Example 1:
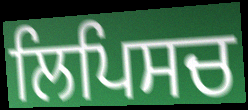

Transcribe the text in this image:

ਲਿਪਿਸਚ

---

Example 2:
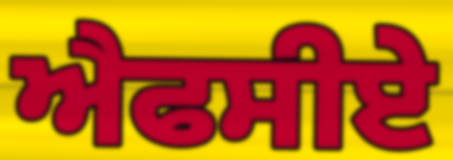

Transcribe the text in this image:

ਐਫਸੀਏ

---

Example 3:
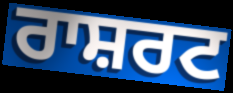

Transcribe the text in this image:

ਰਾਸ਼ਰਟ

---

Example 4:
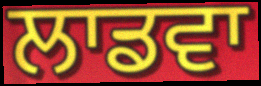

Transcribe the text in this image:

ਲਾਡਵਾ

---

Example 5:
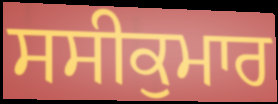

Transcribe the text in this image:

ਸਸੀਕੁਮਾਰ